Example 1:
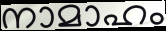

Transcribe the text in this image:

നാമാഹം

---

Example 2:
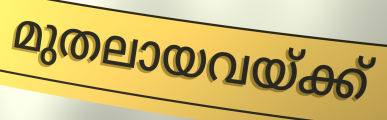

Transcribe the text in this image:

മുതലായവയ്ക്ക്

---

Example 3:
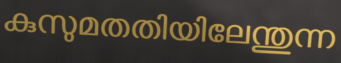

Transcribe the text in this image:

കുസുമതതിയിലേന്തുന്ന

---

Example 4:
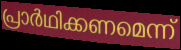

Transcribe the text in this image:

പ്രാർഥിക്കണമെന്ന്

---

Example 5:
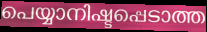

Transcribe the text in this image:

പെയ്യാനിഷ്ടപ്പെടാത്ത